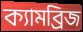
ক্যামব্রিজ